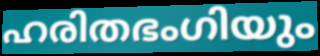
ഹരിതഭംഗിയും